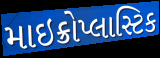
માઇક્રોપ્લાસ્ટિક